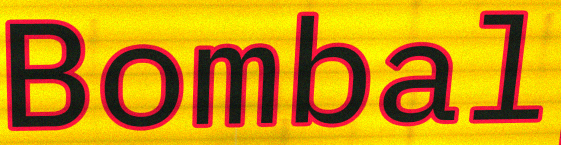
Bombal